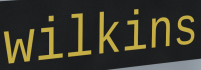
wilkins